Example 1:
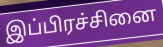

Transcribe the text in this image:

இப்பிரச்சினை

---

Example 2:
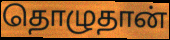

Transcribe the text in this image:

தொழுதான்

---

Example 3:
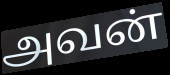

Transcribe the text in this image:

அவன்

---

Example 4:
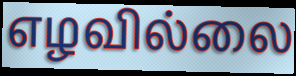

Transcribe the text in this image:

எழவில்லை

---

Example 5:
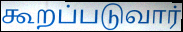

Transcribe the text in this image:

கூறப்படுவார்